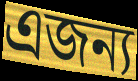
এজন্য